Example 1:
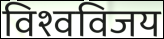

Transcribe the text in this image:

विश्वविजय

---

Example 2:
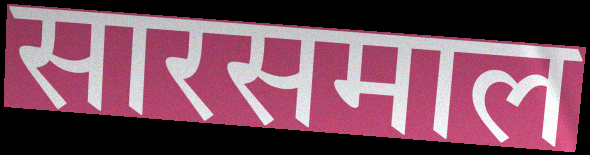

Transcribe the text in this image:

सारसमाल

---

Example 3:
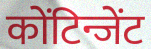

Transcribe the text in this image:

कोंटिन्जेंट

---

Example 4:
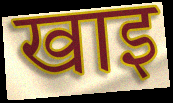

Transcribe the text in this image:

खाइ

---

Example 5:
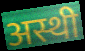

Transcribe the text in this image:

अस्थी